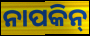
ନାପକିନ୍